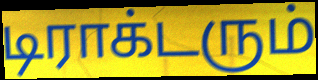
டிராக்டரும்